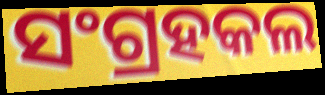
ସଂଗ୍ରହକଲ